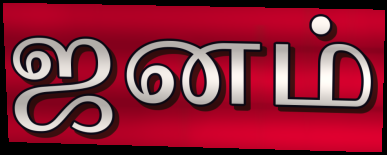
ஜனம்